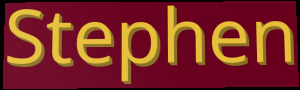
Stephen